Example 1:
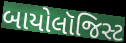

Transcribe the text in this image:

બાયોલૉજિસ્ટ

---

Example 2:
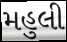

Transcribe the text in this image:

મહુલી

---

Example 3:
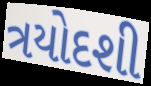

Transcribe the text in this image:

ત્રયોદશી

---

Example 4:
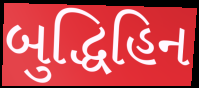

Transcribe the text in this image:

બુદ્ધિહિન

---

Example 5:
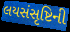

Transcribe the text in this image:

લયસંસૃષ્ટિની